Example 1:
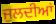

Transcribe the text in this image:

ਜੁਲਦੀਆਂ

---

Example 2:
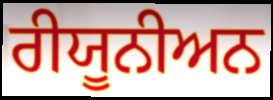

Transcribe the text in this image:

ਰੀਯੂਨੀਅਨ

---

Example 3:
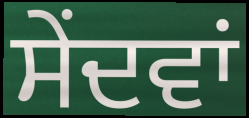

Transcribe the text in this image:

ਸੇਂਦਵਾਂ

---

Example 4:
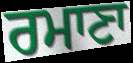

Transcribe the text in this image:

ਰਮਾਣਾ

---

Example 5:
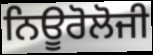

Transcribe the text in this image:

ਨਿਊਰੋਲੋਜੀ